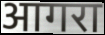
आगरा